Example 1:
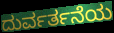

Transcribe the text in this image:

ದುರ್ವರ್ತನೆಯ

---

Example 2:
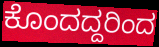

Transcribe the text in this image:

ಕೊಂದದ್ದರಿಂದ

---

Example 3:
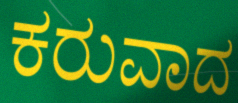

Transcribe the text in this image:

ಕರುವಾದ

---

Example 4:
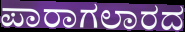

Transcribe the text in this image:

ಪಾರಾಗಲಾರದ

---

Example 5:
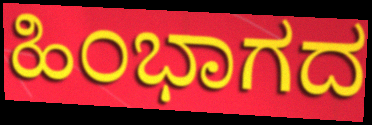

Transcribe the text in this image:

ಹಿಂಭಾಗದ